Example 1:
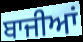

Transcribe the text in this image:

ਬਾਜੀਆਂ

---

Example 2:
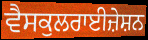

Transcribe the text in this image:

ਵੈਸਕੁਲਰਾਈਜ਼ੇਸ਼ਨ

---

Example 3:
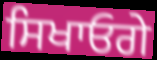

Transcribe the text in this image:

ਸਿਖਾਓਗੇ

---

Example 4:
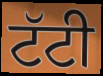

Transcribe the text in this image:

ਟੱਟੀ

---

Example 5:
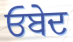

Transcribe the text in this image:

ਓਬੇਦ